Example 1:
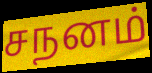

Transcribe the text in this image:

சநனம்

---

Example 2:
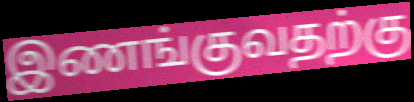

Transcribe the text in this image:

இணங்குவதற்கு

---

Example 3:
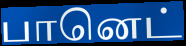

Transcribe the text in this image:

பானெட்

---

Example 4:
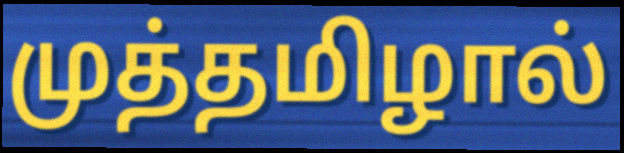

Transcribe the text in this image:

முத்தமிழால்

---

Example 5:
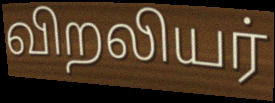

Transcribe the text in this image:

விறலியர்